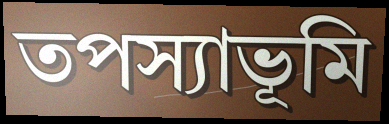
তপস্যাভূমি